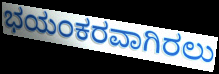
ಭಯಂಕರವಾಗಿರಲು